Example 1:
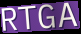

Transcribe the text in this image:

RTGA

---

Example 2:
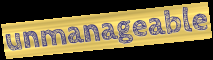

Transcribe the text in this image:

unmanageable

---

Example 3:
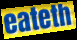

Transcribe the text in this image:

eateth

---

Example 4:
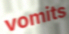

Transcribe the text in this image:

vomits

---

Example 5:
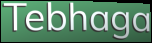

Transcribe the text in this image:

Tebhaga